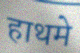
हाथमे